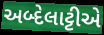
અબ્દેલાટ્ટીએ